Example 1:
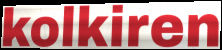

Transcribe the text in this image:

kolkiren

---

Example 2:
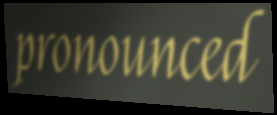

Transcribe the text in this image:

pronounced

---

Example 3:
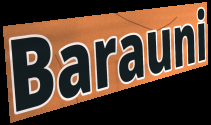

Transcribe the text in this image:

Barauni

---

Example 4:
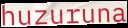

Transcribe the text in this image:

huzuruna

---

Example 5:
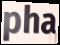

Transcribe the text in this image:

pha